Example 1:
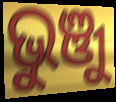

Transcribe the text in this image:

ଭୁଞ୍ଜୁ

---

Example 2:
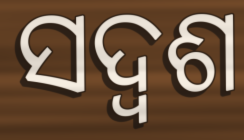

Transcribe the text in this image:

ସଦ୍ଵଶ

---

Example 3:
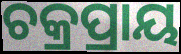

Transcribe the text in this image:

ଚକ୍ରପ୍ରାୟ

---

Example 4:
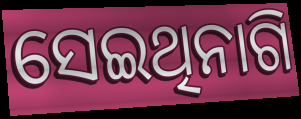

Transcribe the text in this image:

ସେଇଥିନାଗି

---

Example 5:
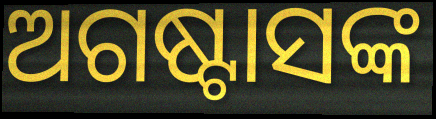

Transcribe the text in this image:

ଅଗଷ୍ଟାସଙ୍କ